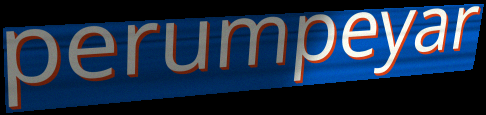
perumpeyar